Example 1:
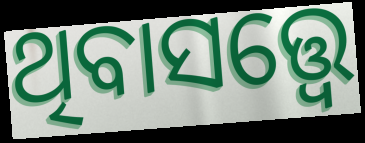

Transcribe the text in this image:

ଥିବାସତ୍ତ୍ଵେ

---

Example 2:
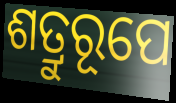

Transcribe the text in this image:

ଶତ୍ରୁରୂପେ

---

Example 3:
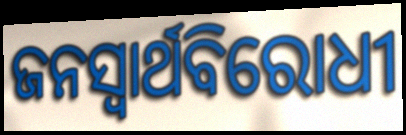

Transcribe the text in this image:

ଜନସ୍ଵାର୍ଥବିରୋଧୀ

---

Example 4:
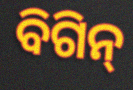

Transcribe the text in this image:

ବିଗିନ୍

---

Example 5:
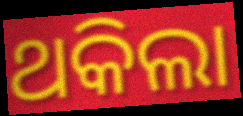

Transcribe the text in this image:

ଥକିଲା